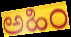
ಅಹಿಂ